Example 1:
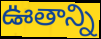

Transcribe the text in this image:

ఊతాన్ని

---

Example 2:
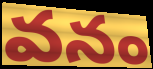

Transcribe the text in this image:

వనం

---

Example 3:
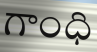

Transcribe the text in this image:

గాంధి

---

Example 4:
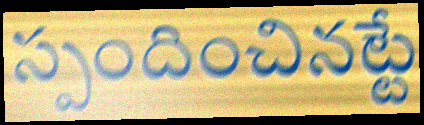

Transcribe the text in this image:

స్పందించినట్టే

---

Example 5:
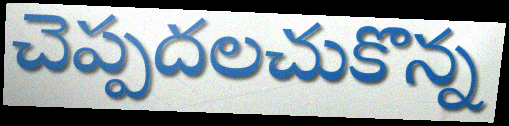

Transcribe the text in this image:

చెప్పదలచుకొన్న